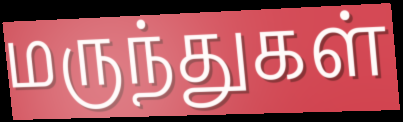
மருந்துகள்